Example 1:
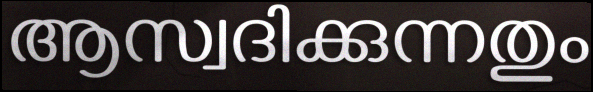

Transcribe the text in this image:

ആസ്വദിക്കുന്നതും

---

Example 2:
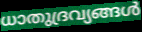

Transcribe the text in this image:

ധാതുദ്രവ്യങ്ങൾ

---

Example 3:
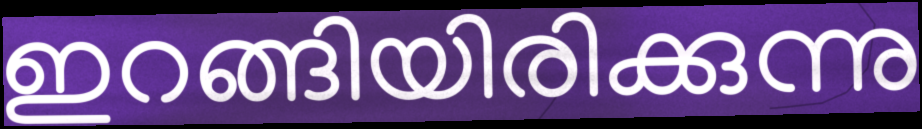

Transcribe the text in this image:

ഇറങ്ങിയിരിക്കുന്നു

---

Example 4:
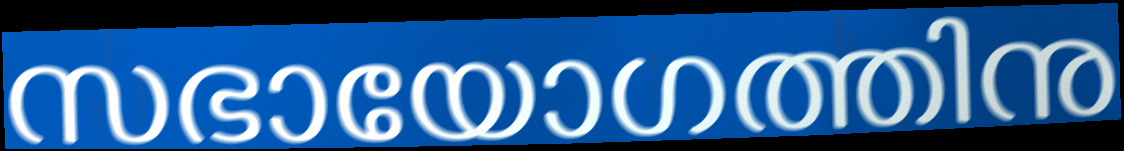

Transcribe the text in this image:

സഭായോഗത്തിനു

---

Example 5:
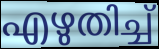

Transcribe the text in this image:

എഴുതിച്ച്